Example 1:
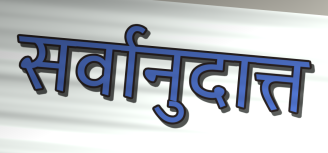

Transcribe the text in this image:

सर्वानुदात्त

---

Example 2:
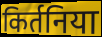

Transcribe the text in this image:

किर्तनिया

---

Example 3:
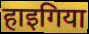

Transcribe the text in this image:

हाइगिया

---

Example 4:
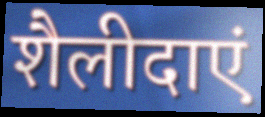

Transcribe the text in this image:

शैलीदाएं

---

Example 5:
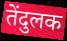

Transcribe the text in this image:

तेंदुलक